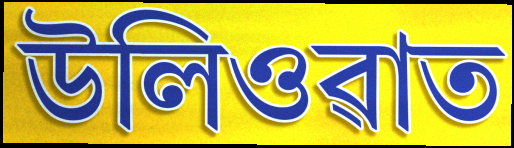
উলিওৱাত